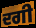
ਦਗੀ